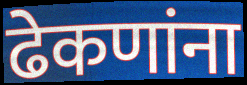
ढेकणांना